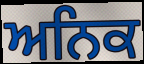
ਅਨਿਕ